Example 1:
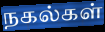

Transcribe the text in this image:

நகல்கள்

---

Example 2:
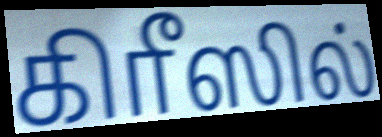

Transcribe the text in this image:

கிரீஸில்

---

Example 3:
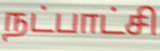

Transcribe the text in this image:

நட்பாட்சி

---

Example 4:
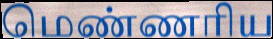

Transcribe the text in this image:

மெண்ணரிய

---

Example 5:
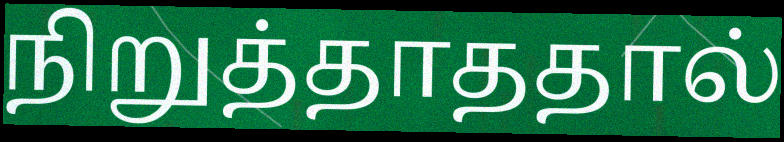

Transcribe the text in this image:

நிறுத்தாததால்